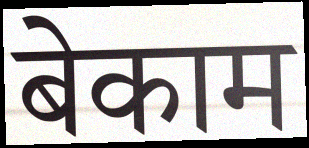
बेकाम